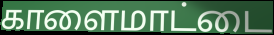
காளைமாட்டை